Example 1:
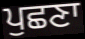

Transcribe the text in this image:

ਪੁਛਣਾ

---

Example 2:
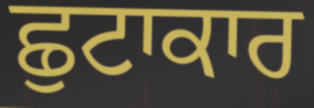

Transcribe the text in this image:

ਛੁਟਾਕਾਰ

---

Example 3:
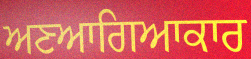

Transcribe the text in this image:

ਅਣਆਗਿਆਕਾਰ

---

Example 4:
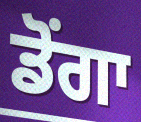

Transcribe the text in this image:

ਡੋਂਗਾ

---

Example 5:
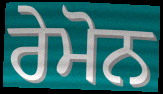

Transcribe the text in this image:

ਰੇਮੋਨ